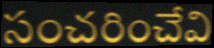
సంచరించేవి